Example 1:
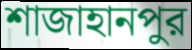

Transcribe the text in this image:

শাজাহানপুর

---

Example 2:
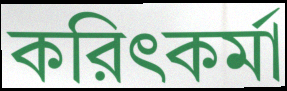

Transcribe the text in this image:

করিৎকর্মা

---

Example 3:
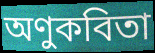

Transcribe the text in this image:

অণুকবিতা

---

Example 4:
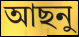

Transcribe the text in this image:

আছনু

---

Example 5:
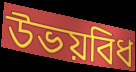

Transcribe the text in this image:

উভয়বিধ